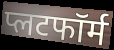
प्लटफॉर्म